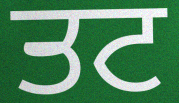
ਤਟ